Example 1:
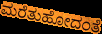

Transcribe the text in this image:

ಮರೆತುಹೋದಂತೆ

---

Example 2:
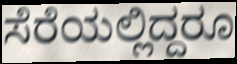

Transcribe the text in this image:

ಸೆರೆಯಲ್ಲಿದ್ದರೂ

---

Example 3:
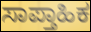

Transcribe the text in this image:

ಸಾಪ್ತಾಹಿಕ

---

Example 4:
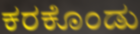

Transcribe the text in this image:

ಕರಕೊಂಡು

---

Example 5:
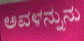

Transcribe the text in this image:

ಅವಳನ್ನುನು